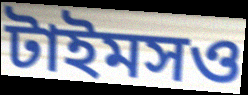
টাইমসও